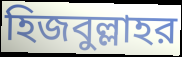
হিজবুল্লাহর